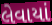
લેવાયાં